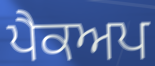
ਪੈਕਅਪ